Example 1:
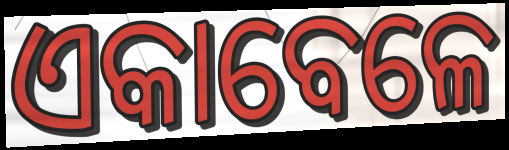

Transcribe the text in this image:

ଏକାବେଳେ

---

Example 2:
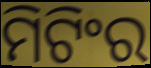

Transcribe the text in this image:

ମିଟିଂର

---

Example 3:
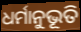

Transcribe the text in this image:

ଧର୍ମାନୁଭୂତି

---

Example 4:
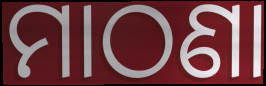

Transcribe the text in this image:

ମାଠଣା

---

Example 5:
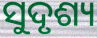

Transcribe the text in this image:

ସୁଦୃଶ୍ୟ